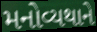
મનોવ્યથાને